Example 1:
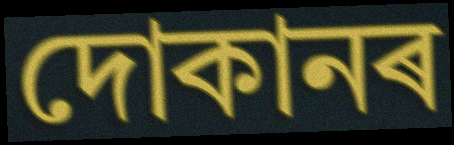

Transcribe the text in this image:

দোকানৰ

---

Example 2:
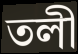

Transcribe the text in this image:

তলী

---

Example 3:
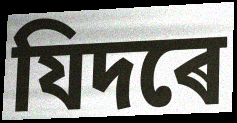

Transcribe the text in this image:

যিদৰে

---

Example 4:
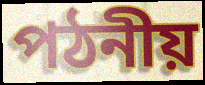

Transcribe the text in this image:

পঠনীয়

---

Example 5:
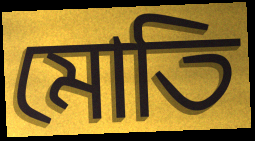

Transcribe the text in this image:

মোতি